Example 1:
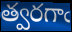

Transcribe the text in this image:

త్వరగాఁ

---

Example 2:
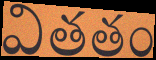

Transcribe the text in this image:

వితతం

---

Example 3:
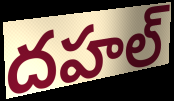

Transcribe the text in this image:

దహల్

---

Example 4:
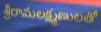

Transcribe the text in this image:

శ్రీరామలక్ష్మణులతో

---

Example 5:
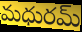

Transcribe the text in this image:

మధురమ్